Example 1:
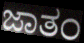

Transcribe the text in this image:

ಜಾತಂ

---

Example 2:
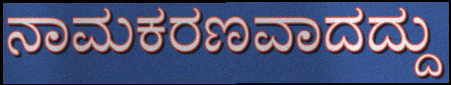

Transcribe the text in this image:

ನಾಮಕರಣವಾದದ್ದು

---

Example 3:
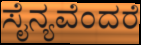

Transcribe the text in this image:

ಸೈನ್ಯವೆಂದರೆ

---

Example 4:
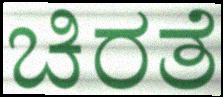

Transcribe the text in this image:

ಚಿರತೆ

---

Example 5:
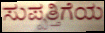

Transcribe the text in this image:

ಸುಪ್ಪತ್ತಿಗೆಯ